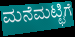
ಮನೆಮಟ್ಟಿಗೆ